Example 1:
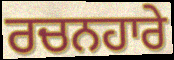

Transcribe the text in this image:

ਰਚਨਹਾਰੇ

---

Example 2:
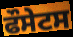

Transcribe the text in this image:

ਫੌਸੇਟਸ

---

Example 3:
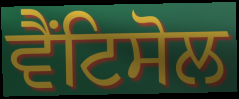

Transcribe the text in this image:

ਵੈਂਟਿਸੋਲ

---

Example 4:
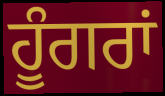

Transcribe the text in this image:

ਹੂੰਗਰਾਂ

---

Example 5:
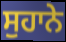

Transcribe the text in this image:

ਸੁਹਾਨੇ